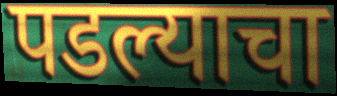
पडल्याचा